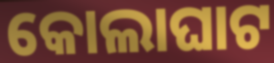
କୋଲାଘାଟ